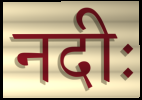
नदीः